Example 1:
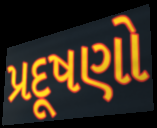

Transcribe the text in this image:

પ્રદૂષણો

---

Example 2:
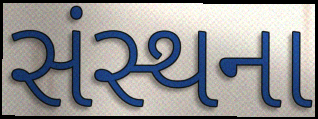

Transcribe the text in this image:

સંસ્થના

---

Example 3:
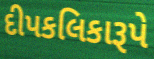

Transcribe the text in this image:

દીપકલિકારૂપે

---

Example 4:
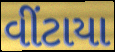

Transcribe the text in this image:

વીંટાયા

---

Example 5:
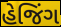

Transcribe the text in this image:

હેજિંગ